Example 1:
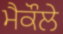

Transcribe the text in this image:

ਮੈਕੌਲੇ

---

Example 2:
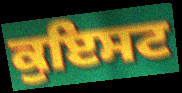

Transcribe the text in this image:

ਕੁਇਸਟ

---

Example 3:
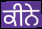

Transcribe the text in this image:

ਕੀਨੇ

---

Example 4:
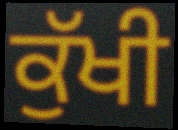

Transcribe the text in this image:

ਕੁੱਖੀ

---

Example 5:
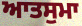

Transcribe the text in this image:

ਆਤਸੁਮਾ